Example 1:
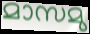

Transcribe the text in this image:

മാസമു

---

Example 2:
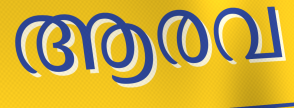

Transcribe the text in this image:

ആരവ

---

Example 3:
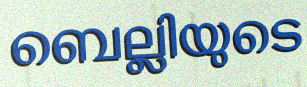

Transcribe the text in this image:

ബെല്ലിയുടെ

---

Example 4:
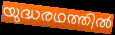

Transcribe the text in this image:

യുദ്ധരഥത്തിൽ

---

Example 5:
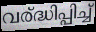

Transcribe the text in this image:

വര്ദ്ധിപ്പിച്ച്